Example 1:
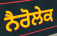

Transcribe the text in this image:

ਨੈਰੋਲੇਕ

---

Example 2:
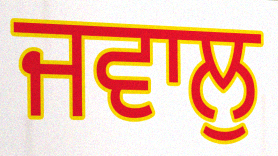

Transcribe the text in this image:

ਜਵਾਲੁ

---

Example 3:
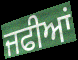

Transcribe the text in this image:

ਜਫੀਆਂ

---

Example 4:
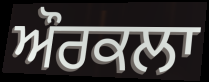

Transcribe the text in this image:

ਔਰਕਲਾ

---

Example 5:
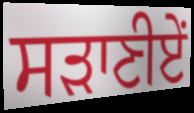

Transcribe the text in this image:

ਸੜਾਣੀਏਂ